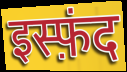
इस्फ़ंद